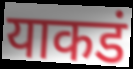
याकडं